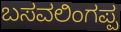
ಬಸವಲಿಂಗಪ್ಪ